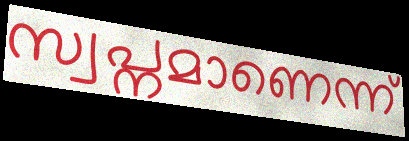
സ്വപ്നമാണെന്ന്